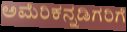
ಅಮೆರಿಕನ್ನಡಿಗರಿಗೆ